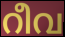
റീവ